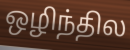
ஒழிந்தில